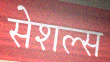
सेशल्स